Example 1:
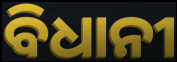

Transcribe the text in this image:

ବିଧାନୀ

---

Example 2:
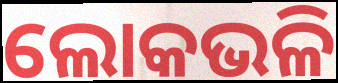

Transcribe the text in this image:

ଲୋକଭଳି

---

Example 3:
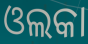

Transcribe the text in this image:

ଓଲକା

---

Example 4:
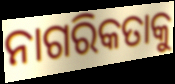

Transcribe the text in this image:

ନାଗରିକତାକୁ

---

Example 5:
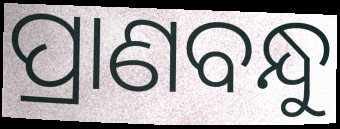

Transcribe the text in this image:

ପ୍ରାଣବନ୍ଧୁ